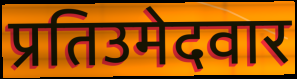
प्रतिउमेदवार